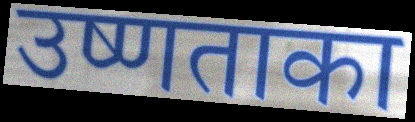
उष्णताका